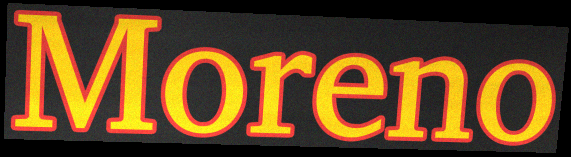
Moreno